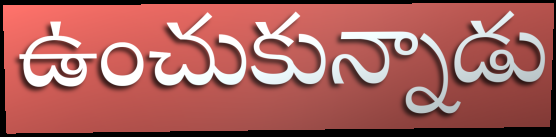
ఉంచుకున్నాడు